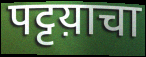
पट्टय़ाचा